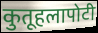
कुतूहलापोटी